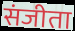
संजीता